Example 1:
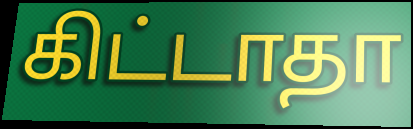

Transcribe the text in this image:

கிட்டாதா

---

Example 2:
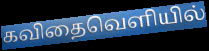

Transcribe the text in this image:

கவிதைவெளியில்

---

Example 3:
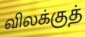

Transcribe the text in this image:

விலக்குத்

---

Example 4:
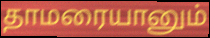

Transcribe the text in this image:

தாமரையானும்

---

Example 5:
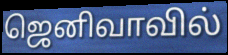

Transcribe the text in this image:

ஜெனிவாவில்